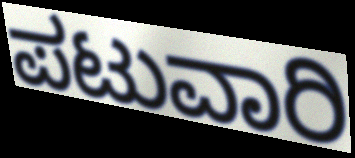
ಪಟುವಾರಿ